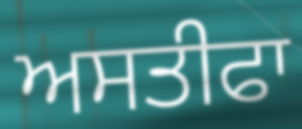
ਅਸਤੀਫਾ